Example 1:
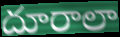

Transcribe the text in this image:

దూరాలా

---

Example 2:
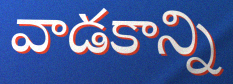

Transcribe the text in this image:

వాడకాన్ని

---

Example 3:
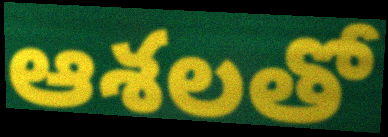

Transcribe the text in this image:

ఆశలతో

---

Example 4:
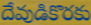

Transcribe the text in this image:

దేవుడికొరకు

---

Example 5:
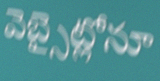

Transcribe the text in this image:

వెబ్సైట్లోనూ